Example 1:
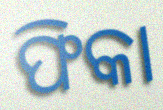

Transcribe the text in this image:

ଫିକା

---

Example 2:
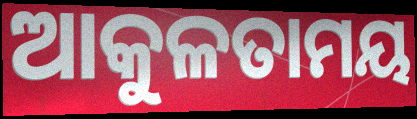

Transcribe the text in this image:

ଆକୁଳତାମୟ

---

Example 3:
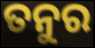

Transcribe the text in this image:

ତନୁର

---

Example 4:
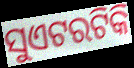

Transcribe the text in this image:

ସୁଏଟରଟିକି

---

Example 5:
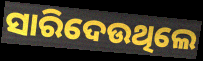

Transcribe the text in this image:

ସାରିଦେଉଥିଲେ